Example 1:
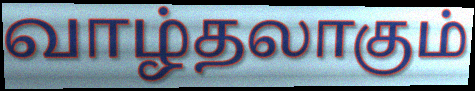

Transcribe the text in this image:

வாழ்தலாகும்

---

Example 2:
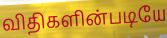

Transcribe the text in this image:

விதிகளின்படியே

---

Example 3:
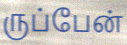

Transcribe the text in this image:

ருப்பேன்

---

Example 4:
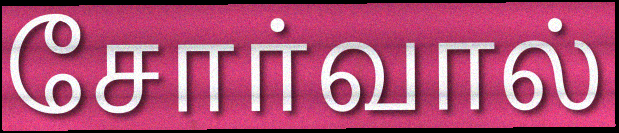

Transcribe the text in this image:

சோர்வால்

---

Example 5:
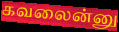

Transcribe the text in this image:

கவலைன்னு